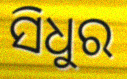
ସିଧୁର